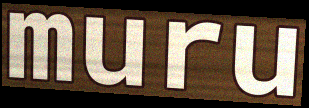
muru